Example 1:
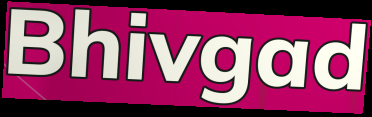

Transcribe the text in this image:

Bhivgad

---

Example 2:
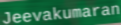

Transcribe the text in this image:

Jeevakumaran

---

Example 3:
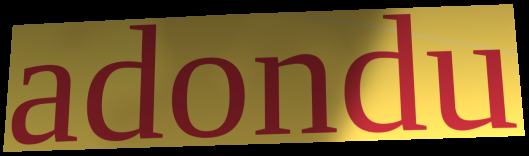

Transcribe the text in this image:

adondu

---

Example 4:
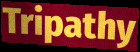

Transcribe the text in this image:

Tripathy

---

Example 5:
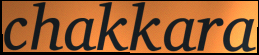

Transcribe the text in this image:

chakkara